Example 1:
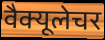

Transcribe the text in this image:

वैक्यूलेचर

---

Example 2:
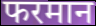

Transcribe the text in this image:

फरमान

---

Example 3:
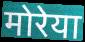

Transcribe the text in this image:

मोरेया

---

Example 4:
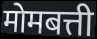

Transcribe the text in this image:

मोमबत्ती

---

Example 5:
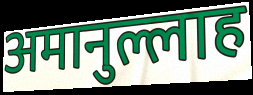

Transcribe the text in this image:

अमानुल्लाह